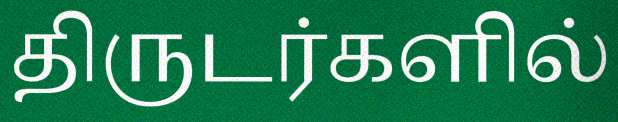
திருடர்களில்